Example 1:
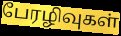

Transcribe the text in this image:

பேரழிவுகள்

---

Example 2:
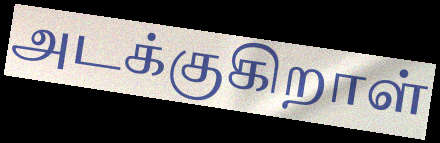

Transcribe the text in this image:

அடக்குகிறாள்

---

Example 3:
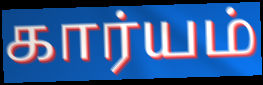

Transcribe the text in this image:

கார்யம்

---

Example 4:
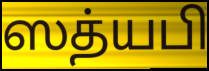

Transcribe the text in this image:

ஸத்யபி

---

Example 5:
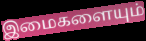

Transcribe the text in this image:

இமைகளையும்